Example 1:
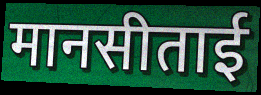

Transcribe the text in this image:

मानसीताई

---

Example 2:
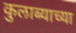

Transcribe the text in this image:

कुलाब्याच्या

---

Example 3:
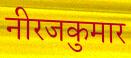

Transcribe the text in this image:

नीरजकुमार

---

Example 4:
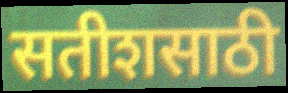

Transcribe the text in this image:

सतीशसाठी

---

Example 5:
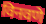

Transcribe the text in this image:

विनवणे